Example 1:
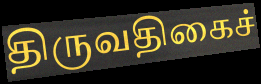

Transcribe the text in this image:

திருவதிகைச்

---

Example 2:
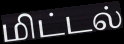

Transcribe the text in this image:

மிட்டல்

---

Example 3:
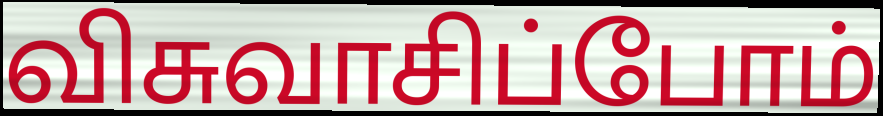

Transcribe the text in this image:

விசுவாசிப்போம்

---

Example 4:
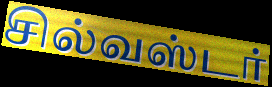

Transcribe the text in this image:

சில்வஸ்டர்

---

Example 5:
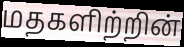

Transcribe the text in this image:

மதகளிற்றின்